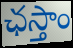
ఛస్తాం